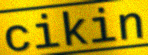
cikin